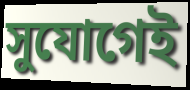
সুযোগেই